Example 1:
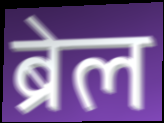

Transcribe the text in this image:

ब्रेल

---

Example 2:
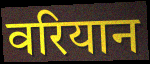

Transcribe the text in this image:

वरियान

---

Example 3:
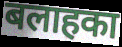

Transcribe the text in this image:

बलाहका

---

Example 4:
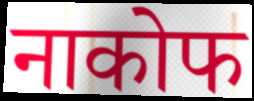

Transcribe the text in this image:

नाकोफ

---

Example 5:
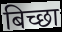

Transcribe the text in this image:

बिच्छा